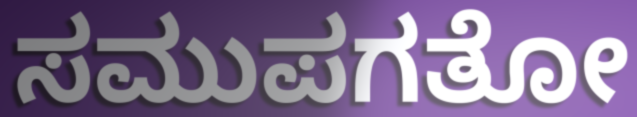
ಸಮುಪಗತೋ